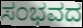
ಸಂಭವದ